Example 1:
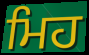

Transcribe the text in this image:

ਮਿਹ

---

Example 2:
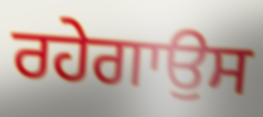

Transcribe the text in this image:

ਰਹੇਗਾਉਸ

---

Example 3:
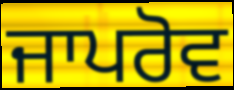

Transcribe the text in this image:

ਜਾਪਰੋਵ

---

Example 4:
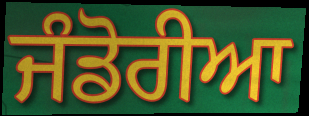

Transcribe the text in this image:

ਜੰਡੋਰੀਆ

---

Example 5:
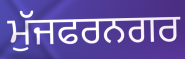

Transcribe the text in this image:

ਮੁੱਜਫਰਨਗਰ